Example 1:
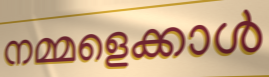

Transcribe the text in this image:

നമ്മളെക്കാൾ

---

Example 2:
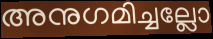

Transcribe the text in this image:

അനുഗമിച്ചല്ലോ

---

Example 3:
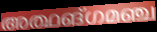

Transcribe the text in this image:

അത്ഥങ്ഗമഞ്ച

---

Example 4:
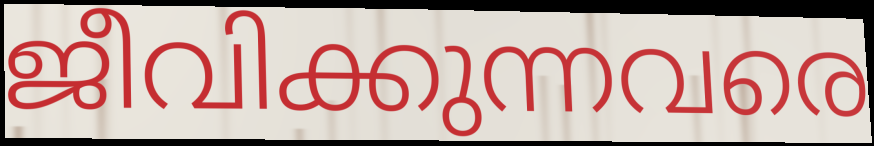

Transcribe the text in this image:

ജീവിക്കുന്നവരെ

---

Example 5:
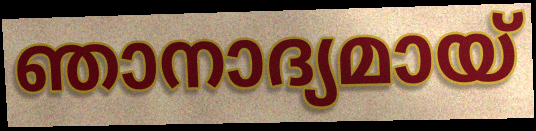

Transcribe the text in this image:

ഞാനാദ്യമായ്